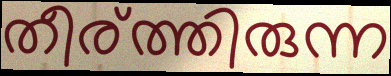
തീര്ത്തിരുന്ന